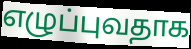
எழுப்புவதாக